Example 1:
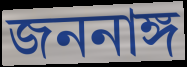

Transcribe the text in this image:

জননাঙ্গ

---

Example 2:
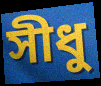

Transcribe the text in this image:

সীধু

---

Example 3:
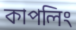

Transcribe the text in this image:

কাপলিং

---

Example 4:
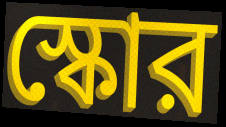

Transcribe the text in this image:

স্কোর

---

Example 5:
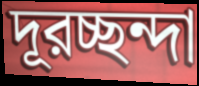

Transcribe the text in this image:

দূরচ্ছন্দা